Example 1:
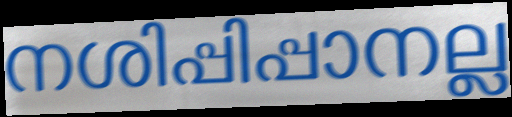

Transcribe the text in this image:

നശിപ്പിപ്പാനല്ല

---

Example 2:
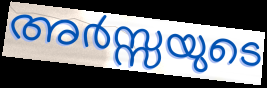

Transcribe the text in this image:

അർസ്സയുടെ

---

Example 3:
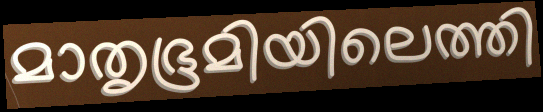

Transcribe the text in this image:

മാതൃഭൂമിയിലെത്തി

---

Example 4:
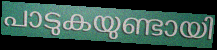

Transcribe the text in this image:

പാടുകയുണ്ടായി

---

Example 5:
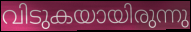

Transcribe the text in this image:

വിടുകയായിരുന്നു